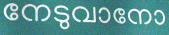
നേടുവാനോ